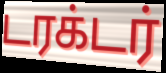
டரக்டர்